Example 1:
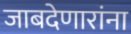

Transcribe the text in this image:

जाबदेणारांना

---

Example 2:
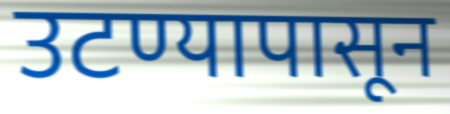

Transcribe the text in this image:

उटण्यापासून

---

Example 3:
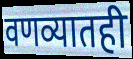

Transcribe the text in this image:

वणव्यातही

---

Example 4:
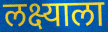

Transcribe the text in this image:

लक्ष्याला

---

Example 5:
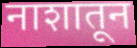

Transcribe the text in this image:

नाशातून